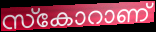
സ്‌കോറാണ്